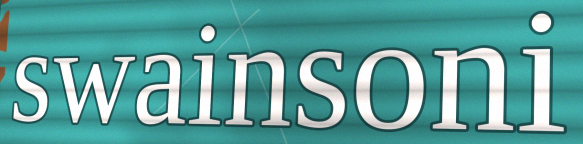
swainsoni